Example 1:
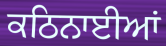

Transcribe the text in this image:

ਕਠਿਨਾਈਆਂ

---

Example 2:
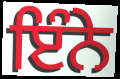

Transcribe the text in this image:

ਇੰਨੇ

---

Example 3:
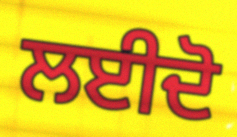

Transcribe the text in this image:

ਲਈਦੋ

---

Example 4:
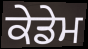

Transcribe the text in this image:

ਕੇਡੇਮ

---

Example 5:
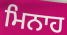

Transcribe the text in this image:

ਮਿਨਾਹ